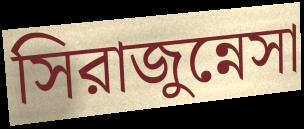
সিরাজুন্নেসা